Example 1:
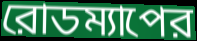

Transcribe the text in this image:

রোডম্যাপের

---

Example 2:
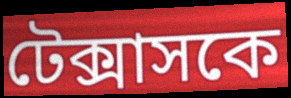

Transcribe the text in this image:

টেক্সাসকে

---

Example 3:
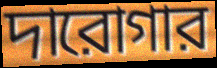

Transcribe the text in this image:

দারোগার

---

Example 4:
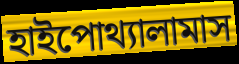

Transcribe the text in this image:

হাইপোথ্যালামাস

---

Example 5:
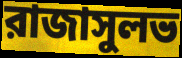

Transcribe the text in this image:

রাজাসুলভ